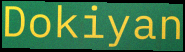
Dokiyan